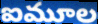
ఐమూల